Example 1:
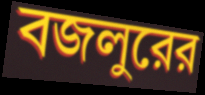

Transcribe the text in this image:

বজলুরের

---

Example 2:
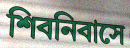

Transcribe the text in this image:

শিবনিবাসে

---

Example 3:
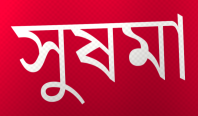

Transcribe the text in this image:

সুষমা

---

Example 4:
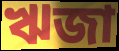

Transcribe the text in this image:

ঋজা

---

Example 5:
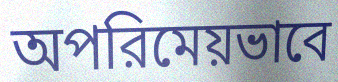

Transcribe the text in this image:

অপরিমেয়ভাবে